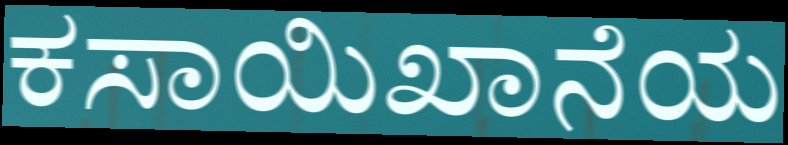
ಕಸಾಯಿಖಾನೆಯ